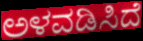
ಅಳವಡಿಸಿದೆ